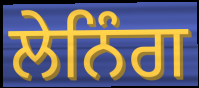
ਲੇਨਿੰਗ